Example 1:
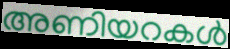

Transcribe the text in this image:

അണിയറകൾ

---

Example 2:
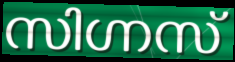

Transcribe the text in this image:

സിഗ്നസ്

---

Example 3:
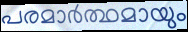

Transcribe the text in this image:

പരമാർത്ഥമായും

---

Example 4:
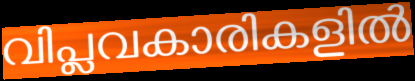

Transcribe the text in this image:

വിപ്ലവകാരികളിൽ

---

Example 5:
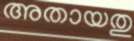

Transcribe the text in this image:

അതായതു